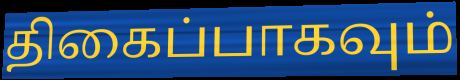
திகைப்பாகவும்